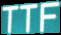
TTF